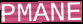
PMANE